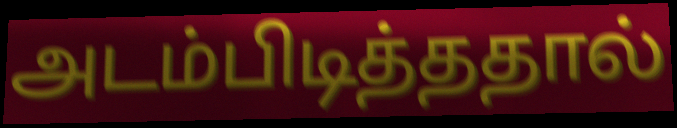
அடம்பிடித்ததால்